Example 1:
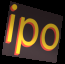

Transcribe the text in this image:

ipo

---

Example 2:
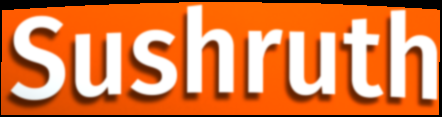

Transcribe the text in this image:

Sushruth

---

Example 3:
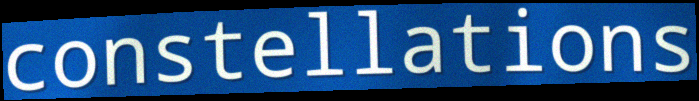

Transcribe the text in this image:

constellations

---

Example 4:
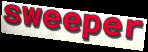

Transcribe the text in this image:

sweeper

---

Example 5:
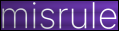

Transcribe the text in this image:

misrule